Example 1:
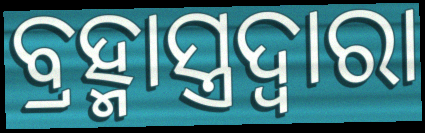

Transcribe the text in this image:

ବ୍ରହ୍ମାସ୍ତ୍ରଦ୍ୱାରା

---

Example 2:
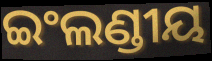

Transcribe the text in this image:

ଇଂଲଣ୍ଡୀୟ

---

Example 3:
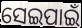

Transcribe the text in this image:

ସେଇପାଇଁ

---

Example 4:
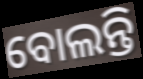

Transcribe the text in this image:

ବୋଲନ୍ତି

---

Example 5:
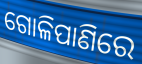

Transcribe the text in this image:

ଗୋଳିପାଣିରେ